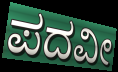
ಪದವೀ